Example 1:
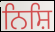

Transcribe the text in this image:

ਨਿਸ਼ਿ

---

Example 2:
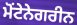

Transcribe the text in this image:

ਮੋਂਟੇਨੇਗਰੀਨ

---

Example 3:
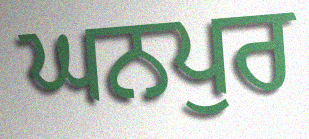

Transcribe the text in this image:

ਘਨਪੁਰ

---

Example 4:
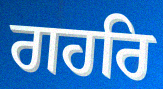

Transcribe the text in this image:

ਗਹਰਿ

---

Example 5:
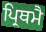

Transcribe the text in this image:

ਪ੍ਰਿਥਮੈ